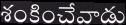
శంకించేవాడు